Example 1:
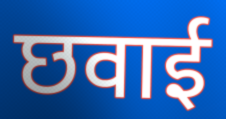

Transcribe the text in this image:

छवाई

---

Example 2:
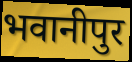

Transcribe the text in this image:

भवानीपुर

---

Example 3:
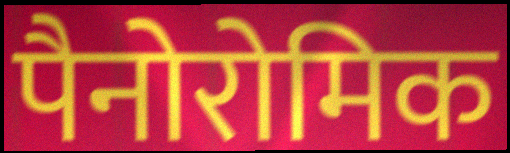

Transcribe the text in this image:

पैनोरोमिक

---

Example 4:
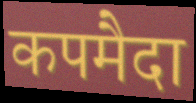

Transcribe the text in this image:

कपमैदा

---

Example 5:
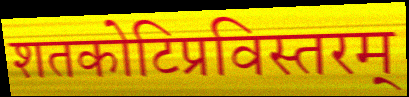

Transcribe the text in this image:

शतकोटिप्रविस्तरम्